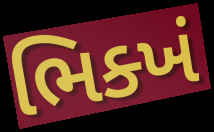
ભિક્ખં